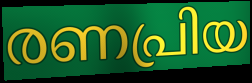
രണപ്രിയ